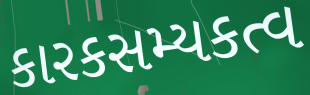
કારકસમ્યકત્વ